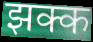
झक्क